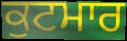
ਕੁਟਮਾਰ